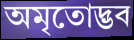
অমৃতোদ্ভব